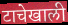
टाचेखाली